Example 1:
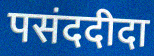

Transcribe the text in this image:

पसंददीदा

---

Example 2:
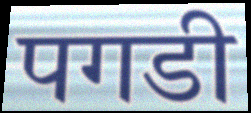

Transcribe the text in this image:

पगडी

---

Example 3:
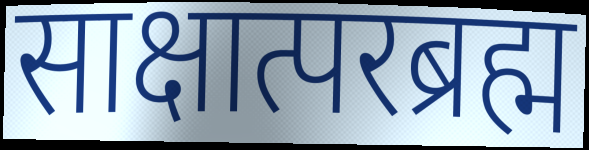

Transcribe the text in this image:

साक्षात्परब्रह्म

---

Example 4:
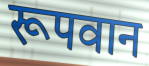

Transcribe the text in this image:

रूपवान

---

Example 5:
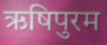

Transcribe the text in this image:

ऋषिपुरम